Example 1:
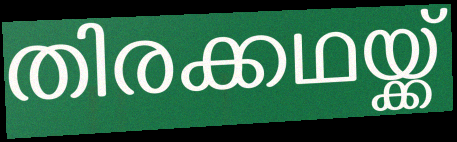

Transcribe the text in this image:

തിരക്കഥയ്ക്ക്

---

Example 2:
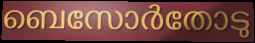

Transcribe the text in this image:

ബെസോർതോടു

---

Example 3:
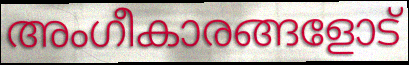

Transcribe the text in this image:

അംഗീകാരങ്ങളോട്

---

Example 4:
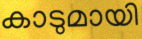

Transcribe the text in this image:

കാടുമായി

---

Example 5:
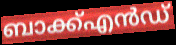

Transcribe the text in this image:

ബാക്ക്എൻഡ്